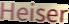
Heiser